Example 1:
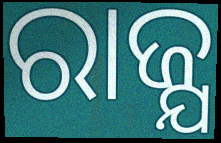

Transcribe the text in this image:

ରାଜ୍ଯ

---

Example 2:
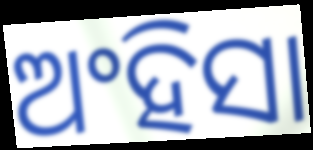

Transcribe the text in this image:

ଅଂହିସା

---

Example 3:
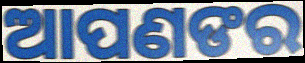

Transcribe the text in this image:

ଆପଣଙର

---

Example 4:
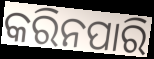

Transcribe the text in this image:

କରିନପାରି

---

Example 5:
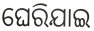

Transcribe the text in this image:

ଘେରିଯାଇ